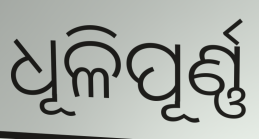
ଧୂଳିପୂର୍ଣ୍ଣ